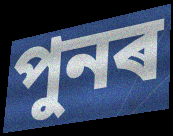
পুনৰ